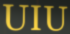
UIU